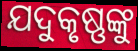
ଯଦୁକୃଷ୍ଣଙ୍କୁ